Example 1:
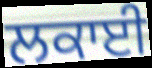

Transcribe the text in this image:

ਲਕਾਈ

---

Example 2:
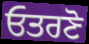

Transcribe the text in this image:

ਓਤਰਣੋ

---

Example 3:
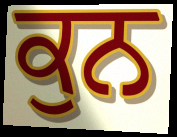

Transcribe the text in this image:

ਕੁਨ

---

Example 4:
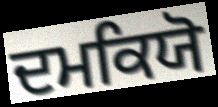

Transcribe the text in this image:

ਦਮਕਿਯੋ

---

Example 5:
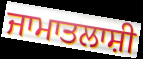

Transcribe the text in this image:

ਜਾਮਾਤਲਾਸ਼ੀ